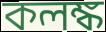
কলঙ্ক